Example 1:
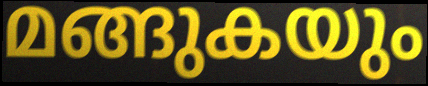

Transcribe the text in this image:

മങ്ങുകയും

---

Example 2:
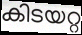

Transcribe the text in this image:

കിടയറ്റ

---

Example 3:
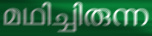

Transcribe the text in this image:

മഥിച്ചിരുന്ന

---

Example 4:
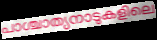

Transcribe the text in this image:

പാശ്ചാത്യനാടുകളിലെ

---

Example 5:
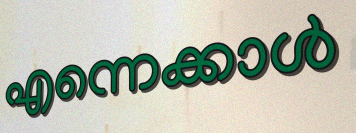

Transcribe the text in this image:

എന്നെക്കാൾ